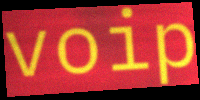
voip